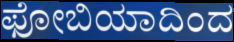
ಫೋಬಿಯಾದಿಂದ